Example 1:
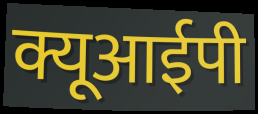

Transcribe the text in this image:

क्यूआईपी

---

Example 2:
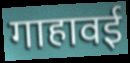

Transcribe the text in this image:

गाहावई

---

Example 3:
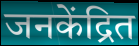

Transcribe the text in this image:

जनकेंद्रित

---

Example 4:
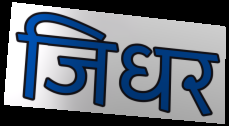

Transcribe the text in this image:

जिधर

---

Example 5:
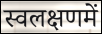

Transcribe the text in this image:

स्वलक्षणमें